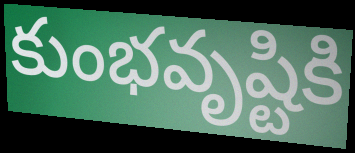
కుంభవృష్టికి